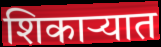
शिकाऱ्यात